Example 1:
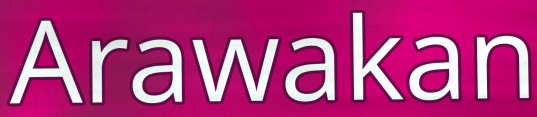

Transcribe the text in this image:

Arawakan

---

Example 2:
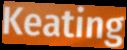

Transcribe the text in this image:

Keating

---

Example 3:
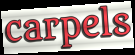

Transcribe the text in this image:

carpels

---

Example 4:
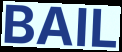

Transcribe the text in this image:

BAIL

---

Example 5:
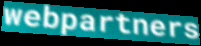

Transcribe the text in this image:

webpartners